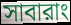
সাবারাং